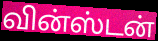
வின்ஸ்டன்